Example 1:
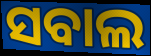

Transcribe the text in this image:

ସବାଲ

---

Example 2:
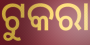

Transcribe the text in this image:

ଟୁକରା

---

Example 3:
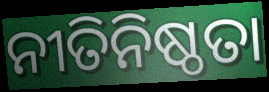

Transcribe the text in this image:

ନୀତିନିଷ୍ଠତା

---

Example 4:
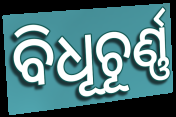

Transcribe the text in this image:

ବିଧୂଚୂର୍ଣ୍ଣ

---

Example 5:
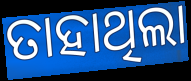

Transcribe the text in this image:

ତାହାଥିଲା